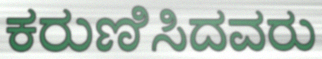
ಕರುಣಿಸಿದವರು